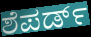
ಶೆಪರ್ಡ್